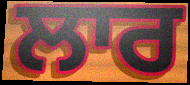
ਲਾਰ